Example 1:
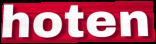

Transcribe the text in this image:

hoten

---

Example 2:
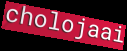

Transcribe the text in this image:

cholojaai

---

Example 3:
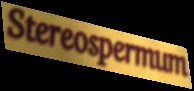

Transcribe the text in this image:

Stereospermum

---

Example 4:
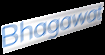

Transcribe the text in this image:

Bhagawat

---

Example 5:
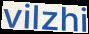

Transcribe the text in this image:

vilzhi